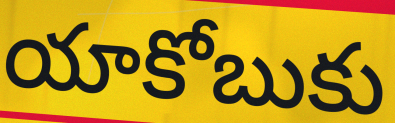
యాకోబుకు